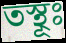
তস্থূঃ